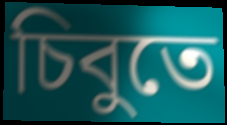
চিবুতে